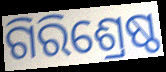
ଗିରିଶ୍ରେଷ୍ଠ